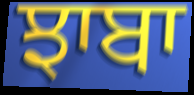
ਝਾਬਾ